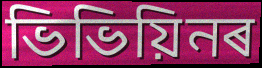
ভিভিয়িনৰ